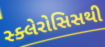
સ્ક્લેરોસિસથી